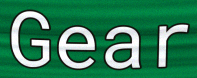
Gear